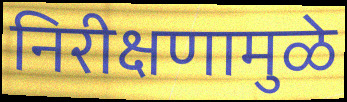
निरीक्षणामुळे